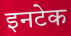
इनटेक